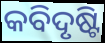
କବିଦୃଷ୍ଟି